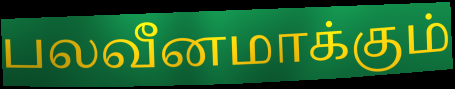
பலவீனமாக்கும்